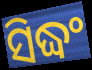
ସିଦ୍ଧଂ